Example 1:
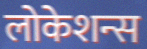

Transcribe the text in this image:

लोकेशन्स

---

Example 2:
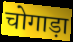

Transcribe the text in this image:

चोगाड़ा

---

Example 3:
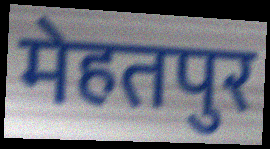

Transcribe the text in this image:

मेहतपुर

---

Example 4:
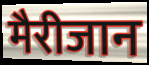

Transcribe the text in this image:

मैरीजान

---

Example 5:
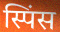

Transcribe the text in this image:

स्पिंस